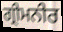
ਗ੍ਰੀਮਨੀਰ